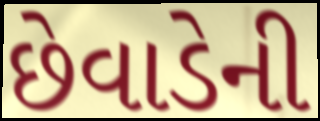
છેવાડેની